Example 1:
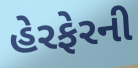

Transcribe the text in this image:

હેરફેરની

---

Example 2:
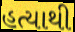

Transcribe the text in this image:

હત્યાથી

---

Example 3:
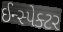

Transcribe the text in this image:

ઈન્સ્પેક્ટર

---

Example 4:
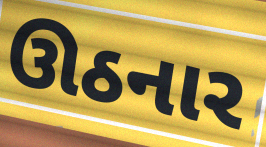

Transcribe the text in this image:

ઊઠનાર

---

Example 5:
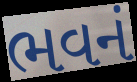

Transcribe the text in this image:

ભવનં